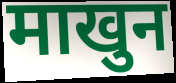
माखुन